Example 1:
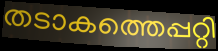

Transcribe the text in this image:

തടാകത്തെപ്പറ്റി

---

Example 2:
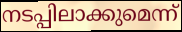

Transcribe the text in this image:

നടപ്പിലാക്കുമെന്ന്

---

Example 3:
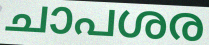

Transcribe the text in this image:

ചാപശര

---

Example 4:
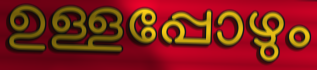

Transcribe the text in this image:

ഉള്ളപ്പോഴും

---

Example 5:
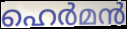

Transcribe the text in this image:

ഹെർമൻ